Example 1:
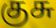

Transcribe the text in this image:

குசு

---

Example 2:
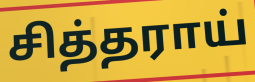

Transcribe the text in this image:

சித்தராய்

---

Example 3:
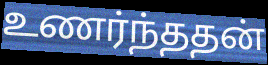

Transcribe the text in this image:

உணர்ந்ததன்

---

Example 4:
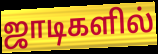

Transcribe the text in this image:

ஜாடிகளில்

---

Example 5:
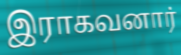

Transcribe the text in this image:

இராகவனார்